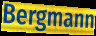
Bergmann